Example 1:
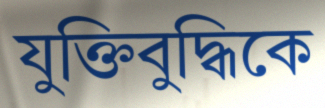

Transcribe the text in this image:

যুক্তিবুদ্ধিকে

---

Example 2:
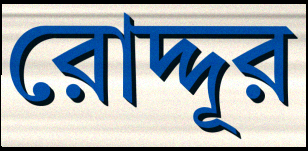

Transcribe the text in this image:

রোদ্দূর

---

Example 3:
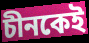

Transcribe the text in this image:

চীনকেই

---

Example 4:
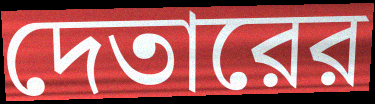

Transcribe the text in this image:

দেতারের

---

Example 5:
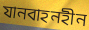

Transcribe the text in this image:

যানবাহনহীন